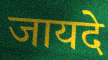
जायदे